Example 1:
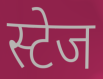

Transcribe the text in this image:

स्टेज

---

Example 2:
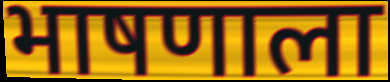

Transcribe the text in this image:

भाषणाला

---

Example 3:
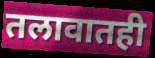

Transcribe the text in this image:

तलावातही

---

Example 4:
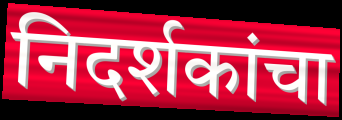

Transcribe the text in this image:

निदर्शकांचा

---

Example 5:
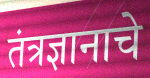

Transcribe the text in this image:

तंत्रज्ञानाचे